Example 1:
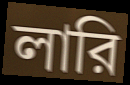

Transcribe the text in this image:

লারি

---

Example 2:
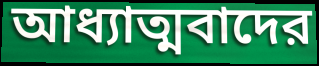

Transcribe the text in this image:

আধ্যাত্মবাদের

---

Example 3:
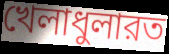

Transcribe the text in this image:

খেলাধুলারত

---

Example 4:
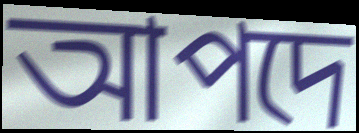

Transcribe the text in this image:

আপদে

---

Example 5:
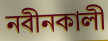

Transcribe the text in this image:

নবীনকালী